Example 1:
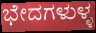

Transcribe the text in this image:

ಭೇದಗಳುಳ್ಳ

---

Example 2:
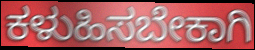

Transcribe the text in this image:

ಕಳುಹಿಸಬೇಕಾಗಿ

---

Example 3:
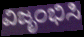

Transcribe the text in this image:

ವಿಜೃಂಭಿಸಿ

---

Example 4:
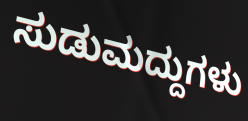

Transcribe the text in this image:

ಸುಡುಮದ್ದುಗಳು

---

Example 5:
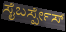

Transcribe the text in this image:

ಸೈಬರ್ಸ್ಪೇಸ್